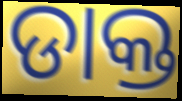
ଡାକ୍ତ